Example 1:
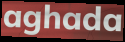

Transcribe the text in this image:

aghada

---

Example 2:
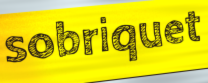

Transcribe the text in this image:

sobriquet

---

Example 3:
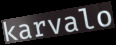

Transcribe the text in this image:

karvalo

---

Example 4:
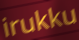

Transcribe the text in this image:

irukku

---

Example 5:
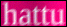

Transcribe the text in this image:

hattu